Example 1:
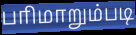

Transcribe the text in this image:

பரிமாறும்படி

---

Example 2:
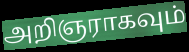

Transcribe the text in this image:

அறிஞராகவும்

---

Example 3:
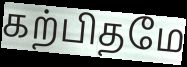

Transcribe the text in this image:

கற்பிதமே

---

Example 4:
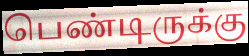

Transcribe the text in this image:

பெண்டிருக்கு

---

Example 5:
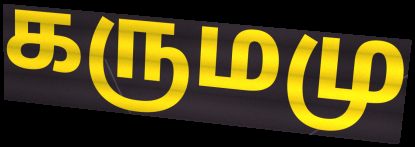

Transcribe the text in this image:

கருமமு